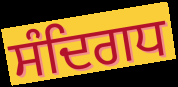
ਸੰਦਿਗਧ